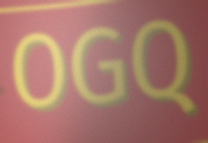
OGQ